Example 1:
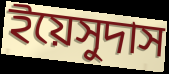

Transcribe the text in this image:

ইয়েসুদাস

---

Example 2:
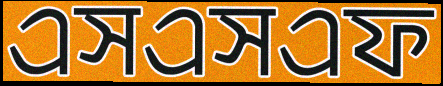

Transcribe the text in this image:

এসএসএফ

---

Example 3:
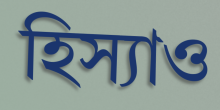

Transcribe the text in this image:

হিস্যাও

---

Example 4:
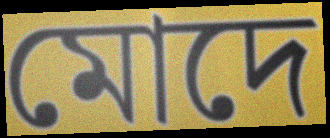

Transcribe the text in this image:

মোদে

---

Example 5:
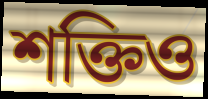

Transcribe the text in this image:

শক্তিও